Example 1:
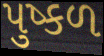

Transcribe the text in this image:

પુષ્કળ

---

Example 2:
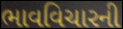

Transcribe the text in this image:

ભાવવિચારની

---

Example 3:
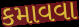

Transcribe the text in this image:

કમાવવા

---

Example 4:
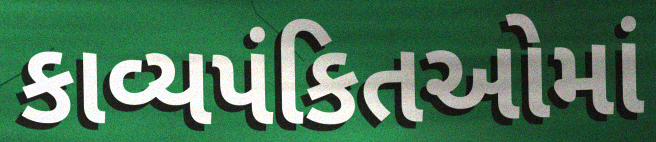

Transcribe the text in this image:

કાવ્યપંકિતઓમાં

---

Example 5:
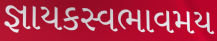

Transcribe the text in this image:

જ્ઞાયકસ્વભાવમય